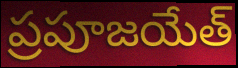
ప్రపూజయేత్